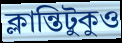
ক্লান্তিটুকুও